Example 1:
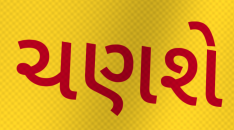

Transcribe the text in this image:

ચણશે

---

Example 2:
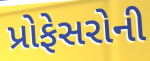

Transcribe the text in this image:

પ્રોફેસરોની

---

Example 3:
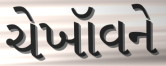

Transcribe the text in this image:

ચેખૉવને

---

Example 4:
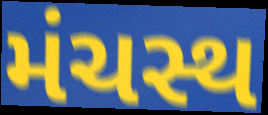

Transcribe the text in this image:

મંચસ્થ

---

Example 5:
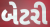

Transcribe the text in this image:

બેટરી